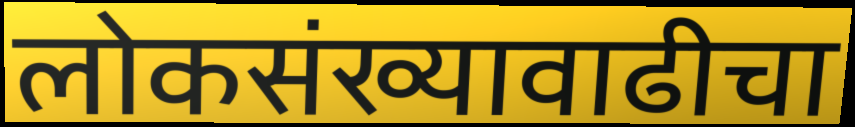
लोकसंख्यावाढीचा